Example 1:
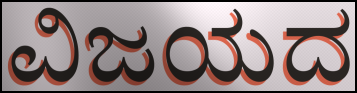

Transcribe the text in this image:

ವಿಜಯದ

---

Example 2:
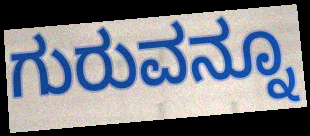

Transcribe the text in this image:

ಗುರುವನ್ನೂ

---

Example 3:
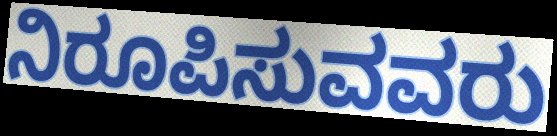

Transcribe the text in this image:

ನಿರೂಪಿಸುವವರು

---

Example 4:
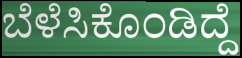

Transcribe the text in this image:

ಬೆಳೆಸಿಕೊಂಡಿದ್ದೆ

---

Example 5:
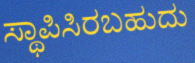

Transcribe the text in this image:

ಸ್ಥಾಪಿಸಿರಬಹುದು